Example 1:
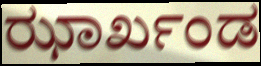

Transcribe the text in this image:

ಝಾರ್ಖಂಡ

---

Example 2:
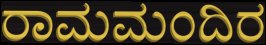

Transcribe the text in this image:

ರಾಮಮಂದಿರ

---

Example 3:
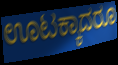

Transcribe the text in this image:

ಊಟಕ್ಕಾದರೂ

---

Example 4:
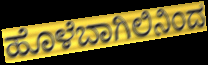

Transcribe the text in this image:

ಹೊಳೆಬಾಗಿಲಿನಿಂದ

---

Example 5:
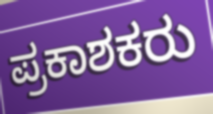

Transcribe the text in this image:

ಪ್ರಕಾಶಕರು